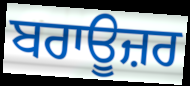
ਬਰਾਊਜ਼ਰ